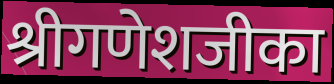
श्रीगणेशजीका